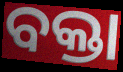
ବକ୍ତା